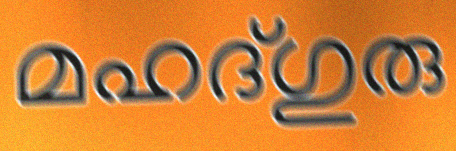
മഹദ്ഗുരു